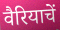
वैरियाचें